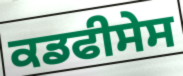
ਕਡਫੀਸੇਸ